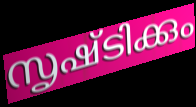
സൃഷ്‌ടിക്കും